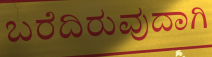
ಬರೆದಿರುವುದಾಗಿ